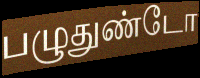
பழுதுண்டோ